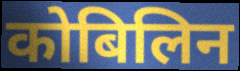
कोबिलिन